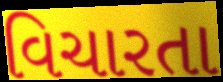
વિચારતા